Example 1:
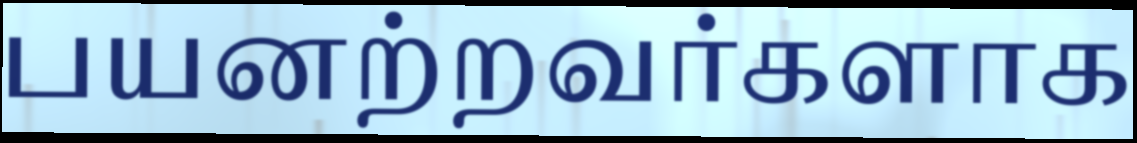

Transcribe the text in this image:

பயனற்றவர்களாக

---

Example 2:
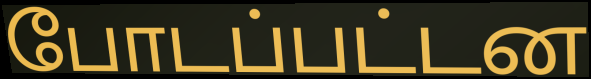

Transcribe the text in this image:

போடப்பட்டன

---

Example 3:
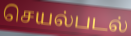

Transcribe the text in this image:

செயல்படல்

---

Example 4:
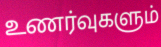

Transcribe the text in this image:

உணர்வுகளும்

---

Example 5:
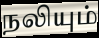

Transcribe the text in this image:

நலியும்